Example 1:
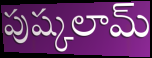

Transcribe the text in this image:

పుష్కలామ్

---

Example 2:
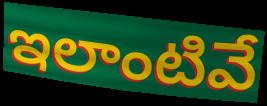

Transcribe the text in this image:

ఇలాంటివే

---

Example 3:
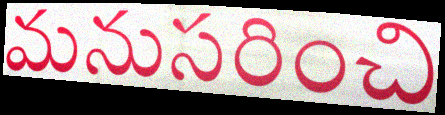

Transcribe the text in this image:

మనుసరించి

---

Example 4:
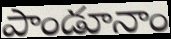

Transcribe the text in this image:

పాండూనాం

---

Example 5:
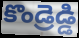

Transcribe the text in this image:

కొండ్రెడ్డి